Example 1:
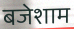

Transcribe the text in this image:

बजेशाम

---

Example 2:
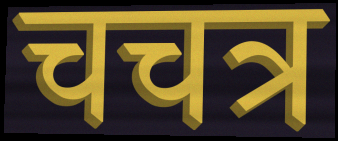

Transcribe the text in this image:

चचत्र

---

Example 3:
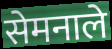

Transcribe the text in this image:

सेमनाले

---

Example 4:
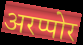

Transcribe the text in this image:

अरप्पोर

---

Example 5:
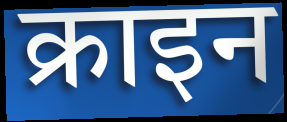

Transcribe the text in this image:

क्राइन